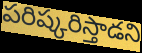
పరిష్కరిస్తాడని